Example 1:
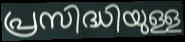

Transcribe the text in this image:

പ്രസിദ്ധിയുള്ള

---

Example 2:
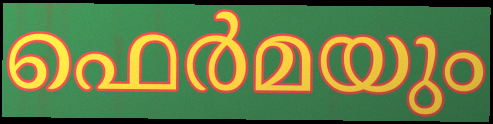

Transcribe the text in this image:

ഫെർമയും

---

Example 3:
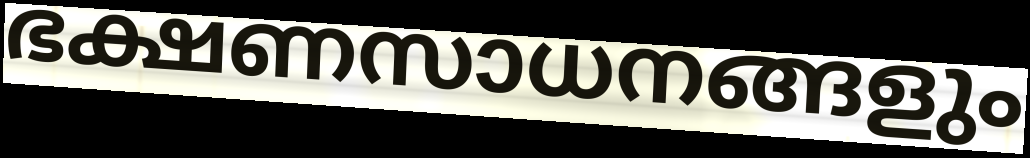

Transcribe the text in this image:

ഭക്ഷണസാധനങ്ങളും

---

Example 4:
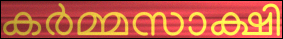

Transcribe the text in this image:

കർമ്മസാക്ഷി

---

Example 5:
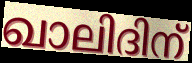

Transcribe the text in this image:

ഖാലിദിന്